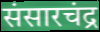
संसारचंद्र